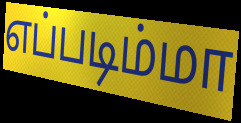
எப்படிம்மா